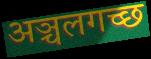
अञ्चलगच्छ